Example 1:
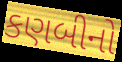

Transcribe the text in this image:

કણબીનો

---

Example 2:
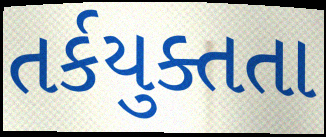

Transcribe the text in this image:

તર્કયુક્તતા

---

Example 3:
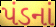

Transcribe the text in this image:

પંડનાં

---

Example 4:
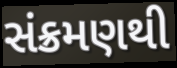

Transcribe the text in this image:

સંક્રમણથી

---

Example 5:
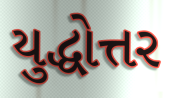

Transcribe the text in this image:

યુદ્ધોત્તર